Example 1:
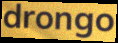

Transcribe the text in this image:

drongo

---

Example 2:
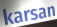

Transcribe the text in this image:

karsan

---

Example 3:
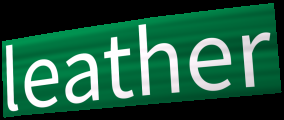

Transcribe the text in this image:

leather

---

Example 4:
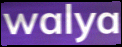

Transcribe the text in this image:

walya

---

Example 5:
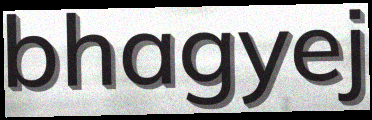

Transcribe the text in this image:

bhagyej